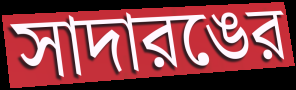
সাদারঙের